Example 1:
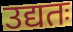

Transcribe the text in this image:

उद्यतः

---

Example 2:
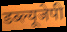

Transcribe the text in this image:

डब्ल्यूजेपी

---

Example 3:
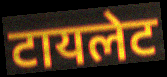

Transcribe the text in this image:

टायलेट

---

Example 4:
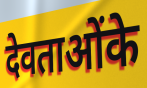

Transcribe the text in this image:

देवताओंके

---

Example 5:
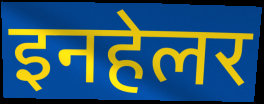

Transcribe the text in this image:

इनहेलर